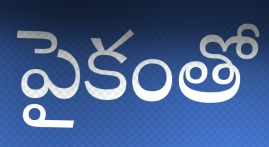
పైకంతో